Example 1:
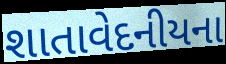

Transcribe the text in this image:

શાતાવેદનીયના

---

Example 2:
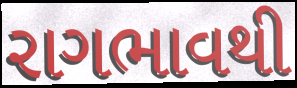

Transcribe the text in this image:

રાગભાવથી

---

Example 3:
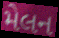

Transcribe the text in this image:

મેલન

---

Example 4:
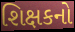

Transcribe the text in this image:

શિક્ષકનો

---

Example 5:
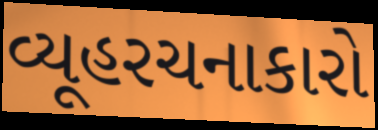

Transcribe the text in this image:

વ્યૂહરચનાકારો